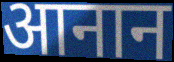
आनान